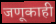
जणूकाही